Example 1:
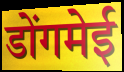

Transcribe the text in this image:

डोंगमेई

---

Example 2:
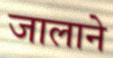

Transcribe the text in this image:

जालाने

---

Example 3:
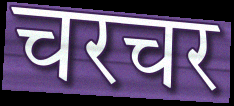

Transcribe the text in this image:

चरचर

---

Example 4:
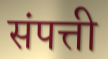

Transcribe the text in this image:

संपत्ती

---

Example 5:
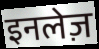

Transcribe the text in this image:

इनलेज़